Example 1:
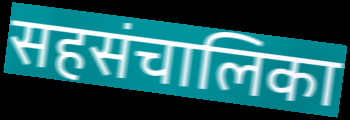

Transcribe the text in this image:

सहसंचालिका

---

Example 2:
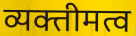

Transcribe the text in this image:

व्यक्तीमत्व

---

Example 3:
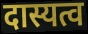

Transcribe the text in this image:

दास्यत्व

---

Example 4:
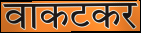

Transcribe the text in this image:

वाकटकर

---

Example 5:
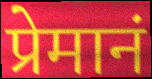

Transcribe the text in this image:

प्रेमानं